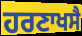
ਹਰਣਾਖਸੈ